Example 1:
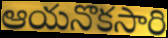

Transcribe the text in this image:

ఆయనొకసారి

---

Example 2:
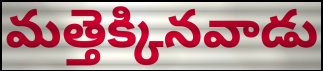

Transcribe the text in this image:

మత్తెక్కినవాడు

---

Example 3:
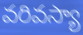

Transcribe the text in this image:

వరివస్యా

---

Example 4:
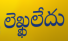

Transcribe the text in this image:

లెఖ్ఖలేదు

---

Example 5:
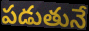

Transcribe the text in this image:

పడుతునే